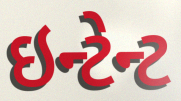
ઇન્ટેન્ટ